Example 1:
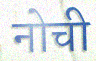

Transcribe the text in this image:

नोची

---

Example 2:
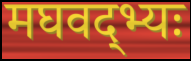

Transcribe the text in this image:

मघवद्भ्यः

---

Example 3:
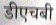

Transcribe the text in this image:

डीएचबी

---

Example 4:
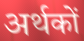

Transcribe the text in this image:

अर्थकों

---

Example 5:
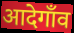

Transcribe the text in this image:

आदेगाँव